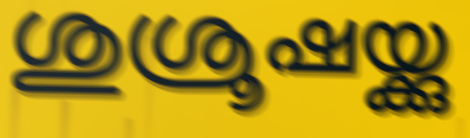
ശുശ്രൂഷയ്ക്കു